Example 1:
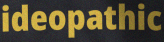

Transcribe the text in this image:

ideopathic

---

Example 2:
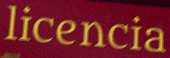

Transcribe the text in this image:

licencia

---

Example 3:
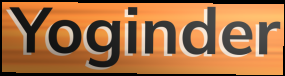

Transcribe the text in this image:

Yoginder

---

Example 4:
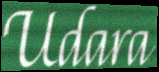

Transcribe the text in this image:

Udara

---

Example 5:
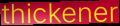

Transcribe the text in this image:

thickener